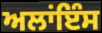
ਅਲਾਂਇੰਸ